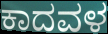
ಕಾದವಳ